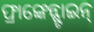
ଫ୍ରାଙ୍କେନ୍ଷ୍ଟାଇନ୍